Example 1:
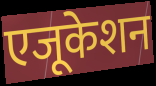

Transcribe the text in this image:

एजूकेशन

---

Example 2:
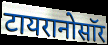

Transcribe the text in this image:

टायरानोसॉर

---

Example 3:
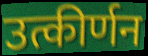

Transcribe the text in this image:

उत्कीर्णन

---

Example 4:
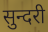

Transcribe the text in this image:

सुन्दरी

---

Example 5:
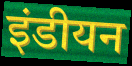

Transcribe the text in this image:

इंडीयन